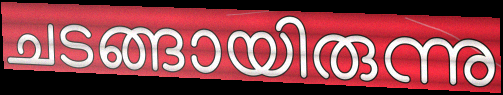
ചടങ്ങായിരുന്നു